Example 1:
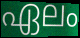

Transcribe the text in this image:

ഏലം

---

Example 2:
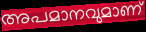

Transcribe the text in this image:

അപമാനവുമാണ്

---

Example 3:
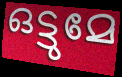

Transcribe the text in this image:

ഒട്ടുമേ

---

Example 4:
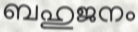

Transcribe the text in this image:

ബഹുജനം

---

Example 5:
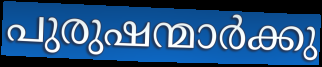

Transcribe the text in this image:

പുരുഷന്മാർക്കു